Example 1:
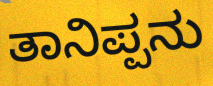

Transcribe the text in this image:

ತಾನಿಪ್ಪನು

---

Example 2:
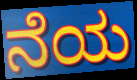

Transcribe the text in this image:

ನೆಯ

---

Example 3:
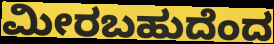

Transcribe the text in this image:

ಮೀರಬಹುದೆಂದ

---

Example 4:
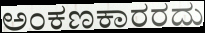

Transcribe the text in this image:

ಅಂಕಣಕಾರರದು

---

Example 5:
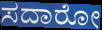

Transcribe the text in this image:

ಸದಾರೋ